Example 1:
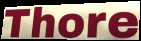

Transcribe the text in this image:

Thore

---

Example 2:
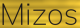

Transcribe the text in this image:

Mizos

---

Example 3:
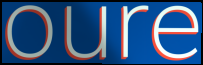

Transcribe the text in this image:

oure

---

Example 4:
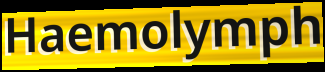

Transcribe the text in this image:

Haemolymph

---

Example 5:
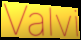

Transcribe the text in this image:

Valvi